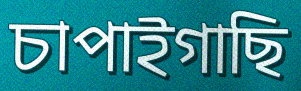
চাপাইগাছি